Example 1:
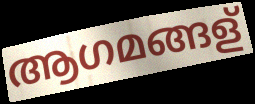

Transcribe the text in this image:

ആഗമങ്ങള്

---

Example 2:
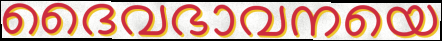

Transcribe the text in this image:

ദൈവഭാവനയെ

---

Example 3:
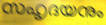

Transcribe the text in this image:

സഹൃദയനും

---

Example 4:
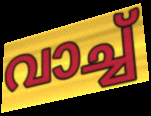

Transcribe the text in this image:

വാച്ച്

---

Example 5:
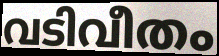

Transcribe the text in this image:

വടിവീതം